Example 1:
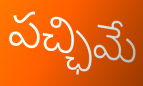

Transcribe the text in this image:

పచ్ఛిమే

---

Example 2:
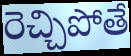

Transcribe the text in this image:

రెచ్చిపోతే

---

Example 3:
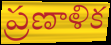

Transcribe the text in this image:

ప్రణాళిక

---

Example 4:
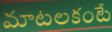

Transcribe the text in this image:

మాటలకంటే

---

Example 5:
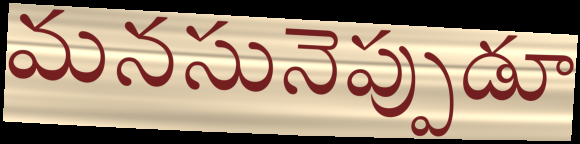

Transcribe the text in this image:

మనసునెప్పుడూ